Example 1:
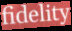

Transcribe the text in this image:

fidelity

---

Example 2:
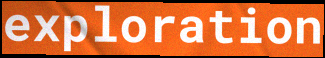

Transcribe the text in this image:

exploration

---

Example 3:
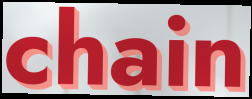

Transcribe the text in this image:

chain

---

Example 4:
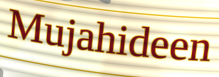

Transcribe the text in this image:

Mujahideen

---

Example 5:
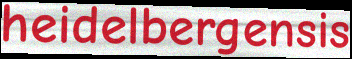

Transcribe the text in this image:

heidelbergensis